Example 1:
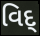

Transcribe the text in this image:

વિદ્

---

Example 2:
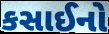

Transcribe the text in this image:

કસાઈનો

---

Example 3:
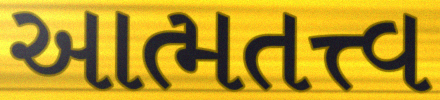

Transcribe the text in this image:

આત્મતત્ત્વ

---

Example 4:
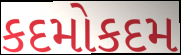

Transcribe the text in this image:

કદમોકદમ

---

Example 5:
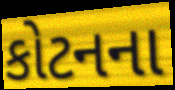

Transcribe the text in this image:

કોટનના